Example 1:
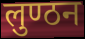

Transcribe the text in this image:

लुण्ठन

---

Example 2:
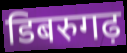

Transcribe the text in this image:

डिबरुगढ़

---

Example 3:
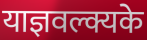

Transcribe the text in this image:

याज्ञवल्क्यके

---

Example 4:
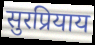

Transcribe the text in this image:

सुरप्रियाय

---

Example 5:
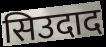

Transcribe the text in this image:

सिउदाद